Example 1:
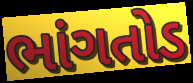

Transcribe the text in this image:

ભાંગતોડ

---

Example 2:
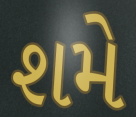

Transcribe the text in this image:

શમે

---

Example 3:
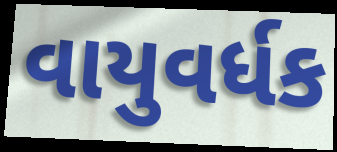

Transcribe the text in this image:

વાયુવર્ધક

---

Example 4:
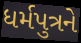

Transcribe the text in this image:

ધર્મપુત્રને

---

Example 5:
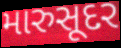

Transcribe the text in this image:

મારુસૂદર